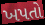
ખપતો